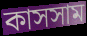
কাসসাম